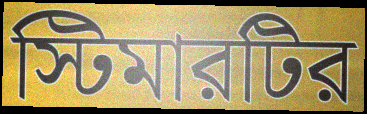
স্টিমারটির